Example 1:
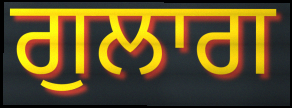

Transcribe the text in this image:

ਗੁਲਾਗ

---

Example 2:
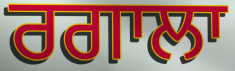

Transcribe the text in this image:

ਰਗਾਲਾ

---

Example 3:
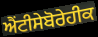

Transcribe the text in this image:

ਐਂਟੀਸੇਬੋਰੇਹੀਕ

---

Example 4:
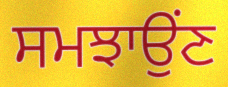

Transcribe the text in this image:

ਸਮਝਾਉਂਣ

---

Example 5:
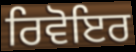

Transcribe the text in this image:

ਰਿਵੋਇਰ